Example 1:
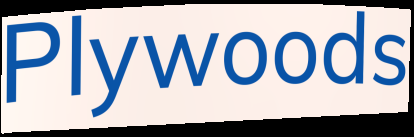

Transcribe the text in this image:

Plywoods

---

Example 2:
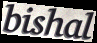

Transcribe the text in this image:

bishal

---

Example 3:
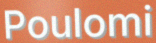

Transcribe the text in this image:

Poulomi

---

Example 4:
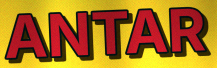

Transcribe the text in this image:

ANTAR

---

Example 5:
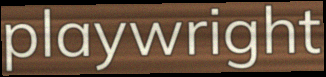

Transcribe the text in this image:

playwright